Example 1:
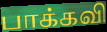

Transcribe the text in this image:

பாக்கவி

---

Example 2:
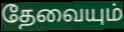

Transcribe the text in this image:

தேவையும்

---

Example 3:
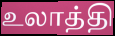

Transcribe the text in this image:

உலாத்தி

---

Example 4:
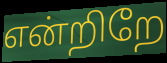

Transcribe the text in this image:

என்றிறே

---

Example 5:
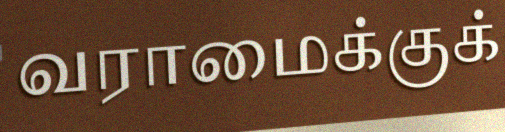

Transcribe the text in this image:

வராமைக்குக்